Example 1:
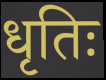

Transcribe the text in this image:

धृतिः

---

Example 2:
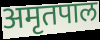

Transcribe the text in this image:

अमृतपाल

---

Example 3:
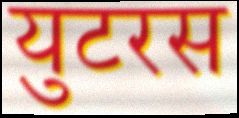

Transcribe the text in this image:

युटरस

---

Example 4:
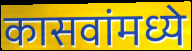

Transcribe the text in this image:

कासवांमध्ये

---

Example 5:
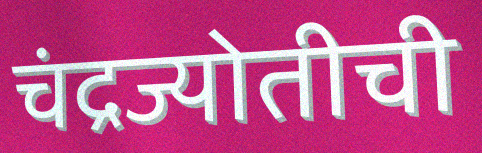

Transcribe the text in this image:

चंद्रज्योतीची